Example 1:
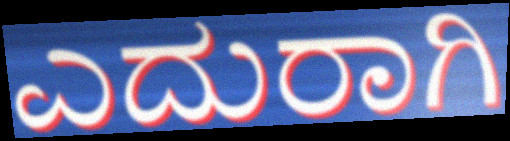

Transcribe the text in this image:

ಎದುರಾಗಿ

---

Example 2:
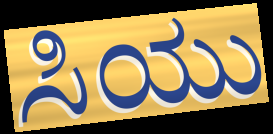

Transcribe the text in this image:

ಸಿಯು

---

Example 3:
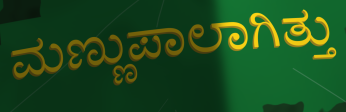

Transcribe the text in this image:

ಮಣ್ಣುಪಾಲಾಗಿತ್ತು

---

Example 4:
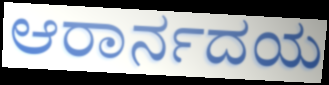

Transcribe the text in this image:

ಆರಾರ್ನದಯ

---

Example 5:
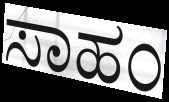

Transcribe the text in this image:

ಸಾಹಂ